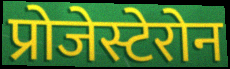
प्रोजेस्टेरोन